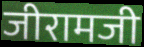
जीरामजी